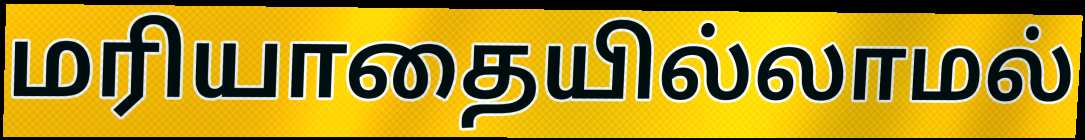
மரியாதையில்லாமல்